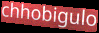
chhobigulo